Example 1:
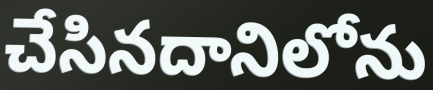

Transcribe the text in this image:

చేసినదానిలోను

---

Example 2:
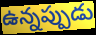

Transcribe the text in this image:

ఉన్నప్పుడు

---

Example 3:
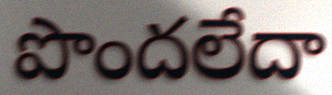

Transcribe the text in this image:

పొందలేదా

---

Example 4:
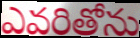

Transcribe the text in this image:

ఎవరితోను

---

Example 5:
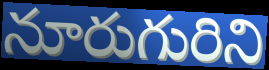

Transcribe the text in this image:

నూరుగురిని